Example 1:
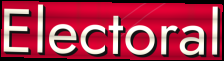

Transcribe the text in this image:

Electoral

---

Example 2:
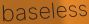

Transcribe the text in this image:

baseless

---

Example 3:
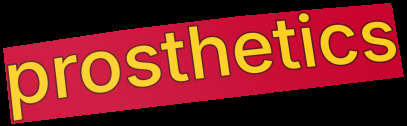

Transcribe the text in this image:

prosthetics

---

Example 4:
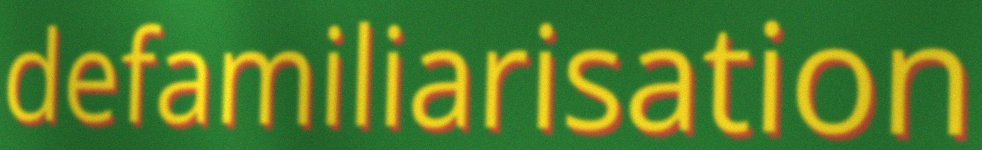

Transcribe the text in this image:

defamiliarisation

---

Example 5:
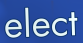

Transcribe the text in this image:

elect